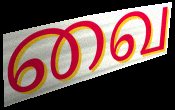
வை